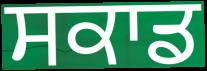
ਸਕਾਡ